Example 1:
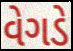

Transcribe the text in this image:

વેગડે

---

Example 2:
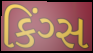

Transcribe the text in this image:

કિંગ્સ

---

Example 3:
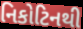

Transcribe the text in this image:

નિકોટિનથી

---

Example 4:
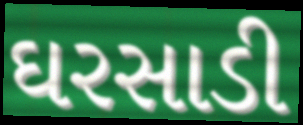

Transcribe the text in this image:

ઘરસાડી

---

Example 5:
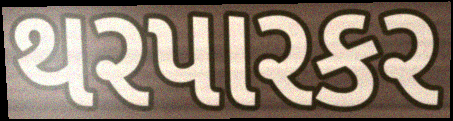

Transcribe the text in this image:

થરપારકર